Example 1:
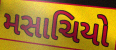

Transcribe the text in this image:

મસાચિયો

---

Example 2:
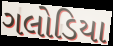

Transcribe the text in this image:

ગલોડિયા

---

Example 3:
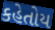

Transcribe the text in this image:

કહેતોય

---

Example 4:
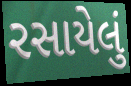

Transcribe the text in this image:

રસાયેલું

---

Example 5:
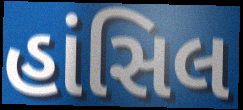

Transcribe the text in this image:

હાંસિલ